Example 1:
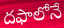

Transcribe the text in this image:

దఫాలోనే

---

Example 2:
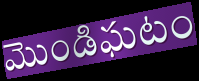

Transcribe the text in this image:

మొండిఘటం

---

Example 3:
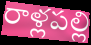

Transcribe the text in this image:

రాళ్లపల్లి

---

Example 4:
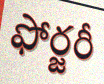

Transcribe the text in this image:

ఫోర్జరీ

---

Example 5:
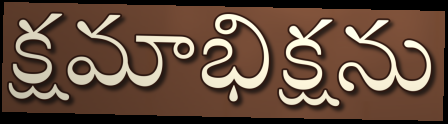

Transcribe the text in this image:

క్షమాభిక్షను